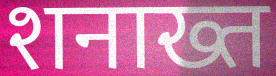
शनाख्त